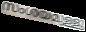
സംശയമുള്ളു